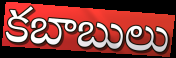
కబాబులు